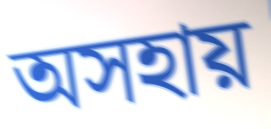
অসহায়